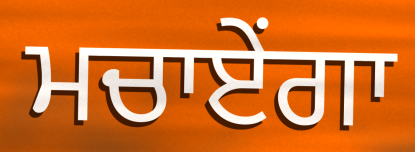
ਮਚਾਏਂਗਾ